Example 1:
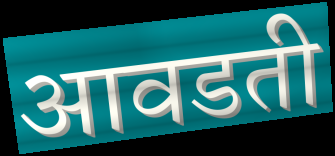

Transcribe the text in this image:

आवडती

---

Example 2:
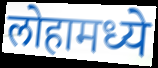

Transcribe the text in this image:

लोहामध्ये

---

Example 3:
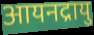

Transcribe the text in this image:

आयनद्रायु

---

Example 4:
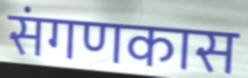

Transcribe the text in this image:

संगणकास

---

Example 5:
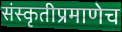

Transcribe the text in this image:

संस्कृतीप्रमाणेच